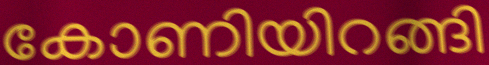
കോണിയിറങ്ങി